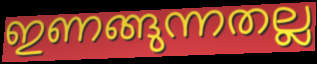
ഇണങ്ങുന്നതല്ല